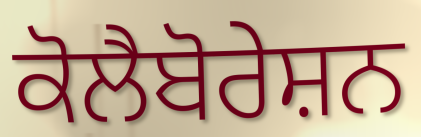
ਕੋਲੈਬੋਰੇਸ਼ਨ